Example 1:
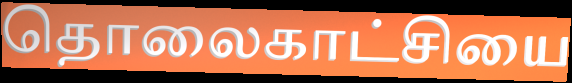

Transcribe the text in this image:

தொலைகாட்சியை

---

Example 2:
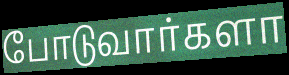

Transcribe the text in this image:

போடுவார்களா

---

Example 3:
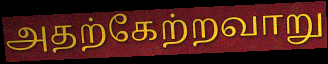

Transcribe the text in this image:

அதற்கேற்றவாறு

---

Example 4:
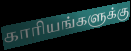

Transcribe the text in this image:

காரியங்களுக்கு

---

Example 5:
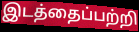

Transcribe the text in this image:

இடத்தைப்பற்றி